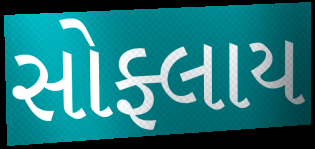
સોફ્લાય